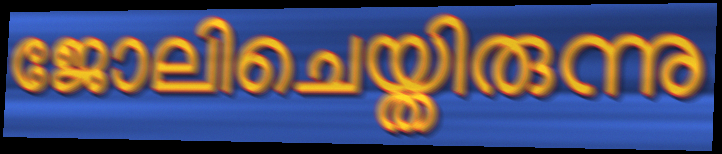
ജോലിചെയ്തിരുന്നു